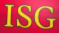
ISG